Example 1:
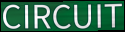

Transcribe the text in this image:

CIRCUIT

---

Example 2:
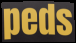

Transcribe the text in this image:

peds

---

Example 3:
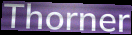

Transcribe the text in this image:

Thorner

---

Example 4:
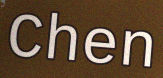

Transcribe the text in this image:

Chen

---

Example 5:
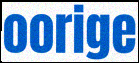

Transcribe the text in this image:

oorige